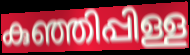
കുഞ്ഞിപ്പിള്ള